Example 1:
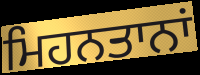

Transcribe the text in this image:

ਮਿਹਨਤਾਨਾਂ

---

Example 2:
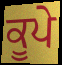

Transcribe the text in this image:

ਕੂਪੇ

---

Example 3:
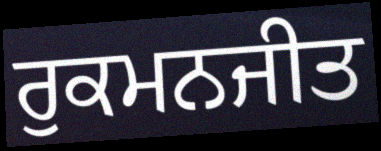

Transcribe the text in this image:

ਰੁਕਮਨਜੀਤ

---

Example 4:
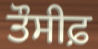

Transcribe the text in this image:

ਤੌਸੀਫ਼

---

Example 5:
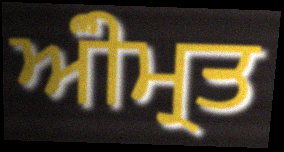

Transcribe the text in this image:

ਅੰੀਮ੍ਰਤ